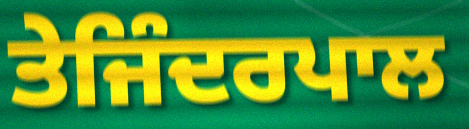
ਤੇਜਿੰਦਰਪਾਲ